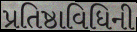
પ્રતિષ્ઠાવિધિની